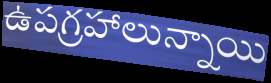
ఉపగ్రహాలున్నాయి